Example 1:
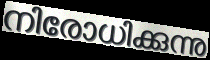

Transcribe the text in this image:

നിരോധിക്കുന്നു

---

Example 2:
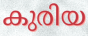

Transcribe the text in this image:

കുരിയ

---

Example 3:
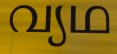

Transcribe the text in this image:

വ്യഥ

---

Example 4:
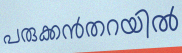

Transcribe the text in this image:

പരുക്കൻതറയിൽ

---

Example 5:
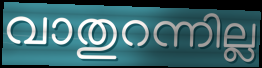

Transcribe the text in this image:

വാതുറന്നില്ല